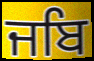
ਜਬਿ